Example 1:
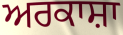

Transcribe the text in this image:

ਅਰਕਾਸ਼ਾ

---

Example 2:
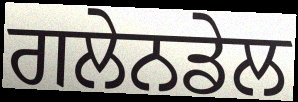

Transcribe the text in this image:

ਗਲੇਨਡੇਲ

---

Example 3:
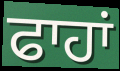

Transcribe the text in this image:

ਫਾਹਾਂ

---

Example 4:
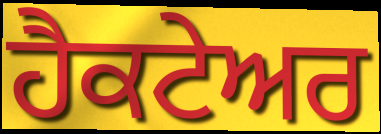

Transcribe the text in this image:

ਹੈਕਟੇਅਰ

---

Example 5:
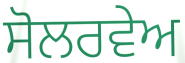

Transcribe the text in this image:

ਸੋਲਰਵੇਅ